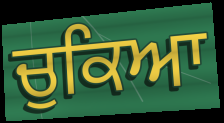
ਚੁਕਿਆ